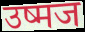
उष्मज